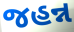
જહન્ન